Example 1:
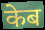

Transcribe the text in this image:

केब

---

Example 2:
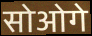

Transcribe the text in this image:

सोओगे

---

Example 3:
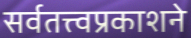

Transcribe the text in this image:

सर्वतत्त्वप्रकाशने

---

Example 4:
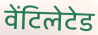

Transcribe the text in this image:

वेंटिलेटेड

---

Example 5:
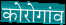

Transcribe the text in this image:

कोरोगांव